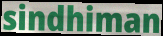
sindhiman